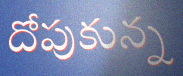
దోపుకున్న